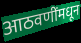
आठवणींमधून